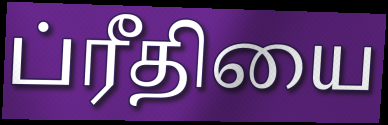
ப்ரீதியை